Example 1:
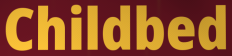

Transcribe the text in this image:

Childbed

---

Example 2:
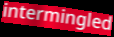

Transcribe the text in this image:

intermingled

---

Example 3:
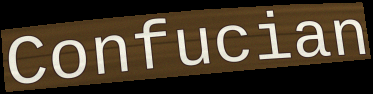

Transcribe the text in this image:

Confucian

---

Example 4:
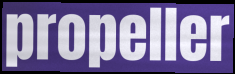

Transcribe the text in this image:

propeller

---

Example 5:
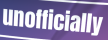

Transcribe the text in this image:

unofficially